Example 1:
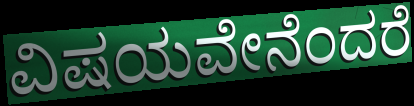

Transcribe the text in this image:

ವಿಷಯವೇನೆಂದರೆ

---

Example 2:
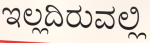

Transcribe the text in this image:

ಇಲ್ಲದಿರುವಲ್ಲಿ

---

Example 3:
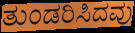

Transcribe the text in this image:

ತುಂಡರಿಸಿದವು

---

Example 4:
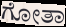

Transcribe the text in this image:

ಗೋತಾ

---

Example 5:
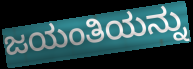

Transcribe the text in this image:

ಜಯಂತಿಯನ್ನು